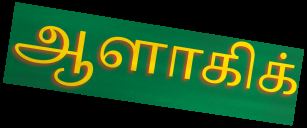
ஆளாகிக்